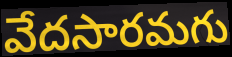
వేదసారమగు